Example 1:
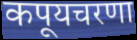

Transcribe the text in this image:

कपूयचरणा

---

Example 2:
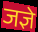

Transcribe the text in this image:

जज्ञे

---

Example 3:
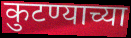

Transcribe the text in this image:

कुटण्याच्या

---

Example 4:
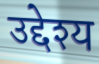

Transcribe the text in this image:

उद्देश्य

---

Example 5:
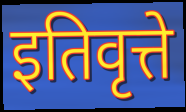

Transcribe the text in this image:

इतिवृत्ते